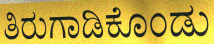
ತಿರುಗಾಡಿಕೊಂಡು